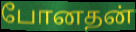
போனதன்